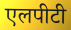
एलपीटी